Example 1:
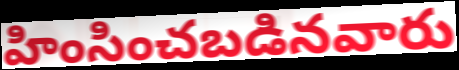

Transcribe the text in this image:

హింసించబడినవారు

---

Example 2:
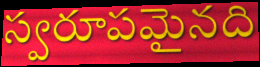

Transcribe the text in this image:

స్వరూపమైనది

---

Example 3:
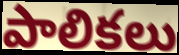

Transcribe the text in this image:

పాలికలు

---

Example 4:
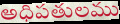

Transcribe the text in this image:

అధిపతులము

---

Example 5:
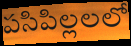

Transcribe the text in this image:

పసిపిల్లలలో